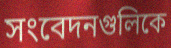
সংবেদনগুলিকে